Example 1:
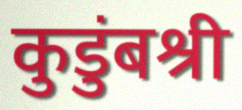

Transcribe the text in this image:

कुडुंबश्री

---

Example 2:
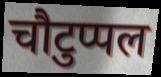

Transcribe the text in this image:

चौटुप्पल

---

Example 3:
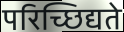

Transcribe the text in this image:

परिच्छिद्यते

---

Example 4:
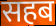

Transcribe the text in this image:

सहब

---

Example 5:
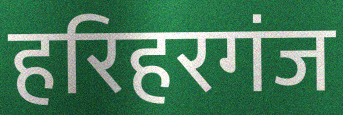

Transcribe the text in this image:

हरिहरगंज